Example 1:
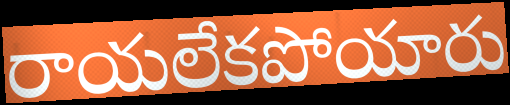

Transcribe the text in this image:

రాయలేకపోయారు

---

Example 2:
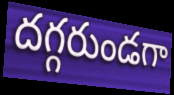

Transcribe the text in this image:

దగ్గరుండగా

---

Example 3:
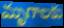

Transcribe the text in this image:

మృగాలకు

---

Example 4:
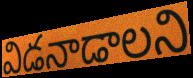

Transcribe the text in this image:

విడనాడాలని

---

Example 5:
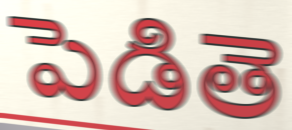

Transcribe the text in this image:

పెడితె